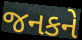
જનકને